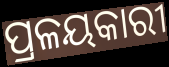
ପ୍ରଳୟକାରୀ